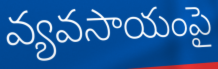
వ్యవసాయంపై